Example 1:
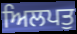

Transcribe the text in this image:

ਅਿਲਪਤੁ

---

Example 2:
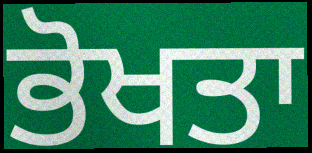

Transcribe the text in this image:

ਭੋਖਤਾ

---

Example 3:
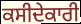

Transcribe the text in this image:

ਕਸੀਦੇਕਾਰੀ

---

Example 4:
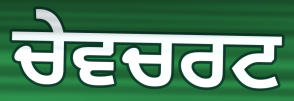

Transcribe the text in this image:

ਚੇਵਚਰਟ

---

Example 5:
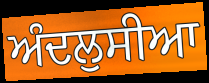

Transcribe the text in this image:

ਅੰਦਲੁਸੀਆ